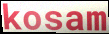
kosam